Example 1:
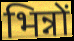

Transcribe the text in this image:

भिन्नों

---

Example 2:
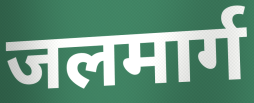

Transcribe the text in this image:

जलमार्ग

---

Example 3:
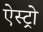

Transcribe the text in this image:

ऐस्ट्रो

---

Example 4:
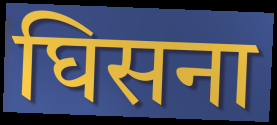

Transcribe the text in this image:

घिसना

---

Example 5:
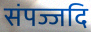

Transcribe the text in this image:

संपज्जदि